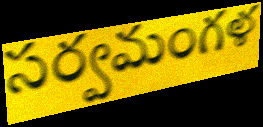
సర్వమంగళ